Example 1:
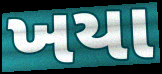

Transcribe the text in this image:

ખયા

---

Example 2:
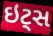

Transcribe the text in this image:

ઇટ્સ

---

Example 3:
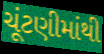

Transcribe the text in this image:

ચૂંટણીમાંથી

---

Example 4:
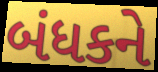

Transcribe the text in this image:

બંધકને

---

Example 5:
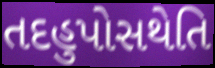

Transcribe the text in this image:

તદહુપોસથેતિ